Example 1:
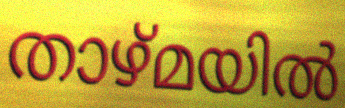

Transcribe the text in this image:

താഴ്മയിൽ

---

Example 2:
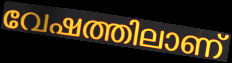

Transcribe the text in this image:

വേഷത്തിലാണ്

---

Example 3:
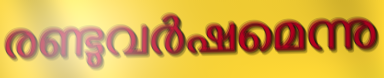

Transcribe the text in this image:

രണ്ടുവർഷമെന്നു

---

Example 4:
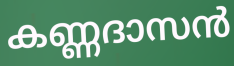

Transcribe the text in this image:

കണ്ണദാസൻ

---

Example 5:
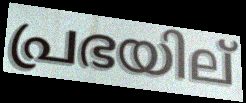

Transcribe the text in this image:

പ്രഭയില്